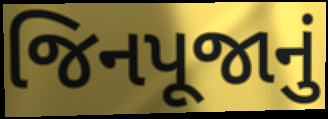
જિનપૂજાનું